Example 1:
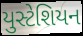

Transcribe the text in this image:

યુસ્ટેશિયન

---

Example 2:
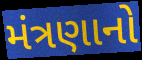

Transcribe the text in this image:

મંત્રણાનો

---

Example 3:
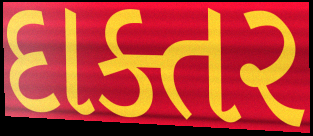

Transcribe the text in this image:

દાક્તર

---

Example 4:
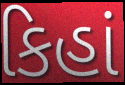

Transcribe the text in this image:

કિહાં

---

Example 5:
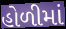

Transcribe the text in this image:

હોળીમાં